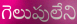
గెలుపులేని